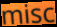
misc